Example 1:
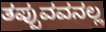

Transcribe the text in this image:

ತಪ್ಪುವವನಲ್ಲ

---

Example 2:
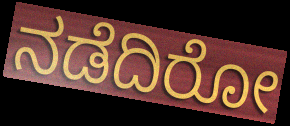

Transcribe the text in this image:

ನಡೆದಿರೋ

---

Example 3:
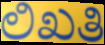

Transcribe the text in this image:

ಲಿಖತಿ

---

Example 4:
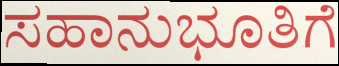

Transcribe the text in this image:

ಸಹಾನುಭೂತಿಗೆ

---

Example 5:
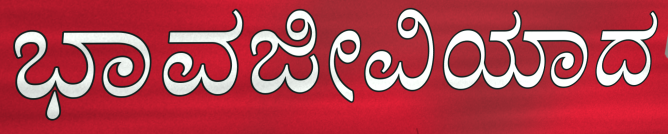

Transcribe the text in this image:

ಭಾವಜೀವಿಯಾದ